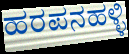
ಹರಪನಹಳ್ಳಿ